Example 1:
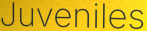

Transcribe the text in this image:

Juveniles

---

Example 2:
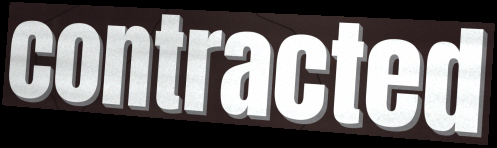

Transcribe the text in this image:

contracted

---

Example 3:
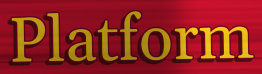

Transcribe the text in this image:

Platform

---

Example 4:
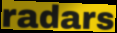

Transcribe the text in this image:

radars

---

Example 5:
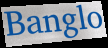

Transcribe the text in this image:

Banglo